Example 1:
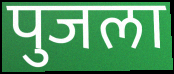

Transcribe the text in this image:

पुजला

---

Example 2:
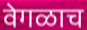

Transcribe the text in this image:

वेगळाच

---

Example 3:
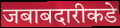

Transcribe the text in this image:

जबाबदारीकडे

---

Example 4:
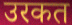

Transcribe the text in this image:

उरकत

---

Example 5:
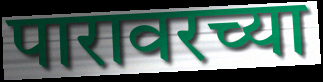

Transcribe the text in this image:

पारावरच्या